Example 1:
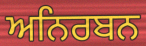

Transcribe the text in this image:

ਅਨਿਰਬਨ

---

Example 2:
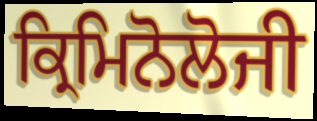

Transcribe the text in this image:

ਕ੍ਰਿਮਿਨੋਲੋਜੀ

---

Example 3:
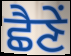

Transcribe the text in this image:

ਛੈਣੇਂ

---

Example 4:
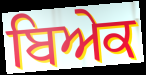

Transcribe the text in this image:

ਬਿਅੇਕ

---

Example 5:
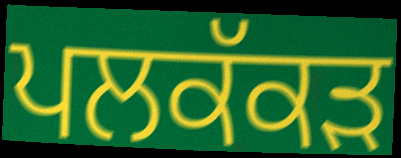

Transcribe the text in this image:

ਪਲਕੱਕੜ